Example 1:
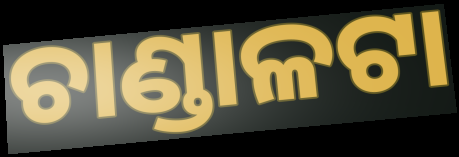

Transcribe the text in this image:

ଚାଣ୍ଡାଳଟା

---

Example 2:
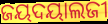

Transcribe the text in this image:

ଜୟଦୟାଲଜୀ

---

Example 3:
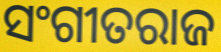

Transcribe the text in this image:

ସଂଗୀତରାଜ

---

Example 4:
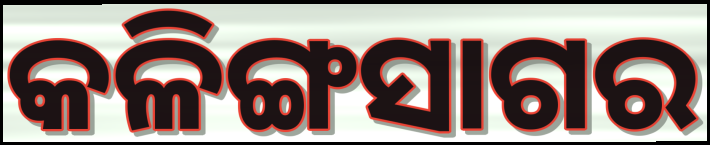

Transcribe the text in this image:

କଳିଙ୍ଗସାଗର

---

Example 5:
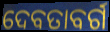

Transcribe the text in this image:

ଦେବତାବର୍ଗ